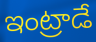
ఇంట్రాడే